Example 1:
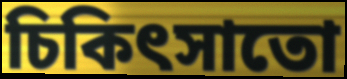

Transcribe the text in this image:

চিকিৎসাতো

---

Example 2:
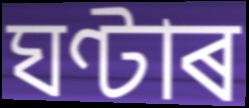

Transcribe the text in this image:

ঘণ্টাৰ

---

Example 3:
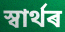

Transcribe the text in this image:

স্বাৰ্থৰ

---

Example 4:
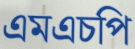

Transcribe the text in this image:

এমএচপি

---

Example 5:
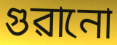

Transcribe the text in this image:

গুৱানো